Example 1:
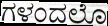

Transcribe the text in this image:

ಗಳಂದಲೊ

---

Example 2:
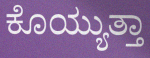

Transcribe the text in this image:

ಕೊಯ್ಯುತ್ತಾ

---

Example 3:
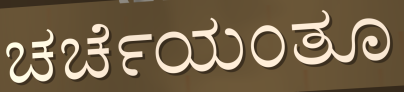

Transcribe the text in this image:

ಚರ್ಚೆಯಂತೂ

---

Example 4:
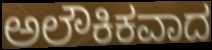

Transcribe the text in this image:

ಅಲೌಕಿಕವಾದ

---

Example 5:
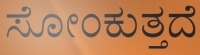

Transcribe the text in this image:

ಸೋಂಕುತ್ತದೆ